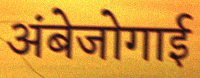
अंबेजोगाई